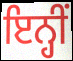
ਇਨ੍ਹੀਂ